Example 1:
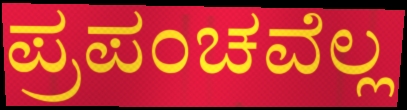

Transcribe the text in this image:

ಪ್ರಪಂಚವೆಲ್ಲ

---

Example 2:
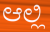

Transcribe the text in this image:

ಆಲ್ಲಿ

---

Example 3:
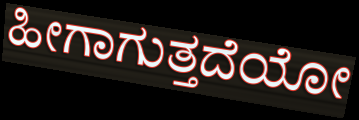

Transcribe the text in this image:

ಹೀಗಾಗುತ್ತದೆಯೋ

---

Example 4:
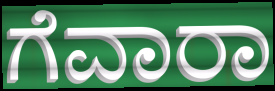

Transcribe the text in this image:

ಗೆವಾರಾ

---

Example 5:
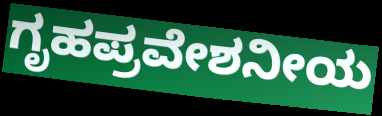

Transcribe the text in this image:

ಗೃಹಪ್ರವೇಶನೀಯ